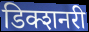
डिक्शनरी